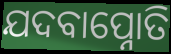
ଯଦବାପ୍ନୋତି